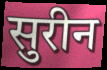
सुरीन